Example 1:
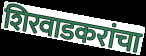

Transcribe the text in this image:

शिरवाडकरांचा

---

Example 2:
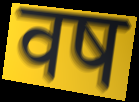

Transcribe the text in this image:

वष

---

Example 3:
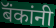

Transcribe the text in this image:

बॅंकांनी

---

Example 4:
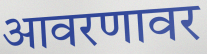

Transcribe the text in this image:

आवरणावर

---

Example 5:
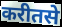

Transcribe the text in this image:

करीतसे